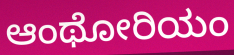
ಆಂಥೋರಿಯಂ